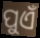
ପୁଏଁ